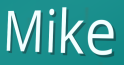
Mike